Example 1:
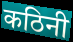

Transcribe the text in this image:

कठिनी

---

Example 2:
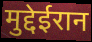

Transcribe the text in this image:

मुद्देईरान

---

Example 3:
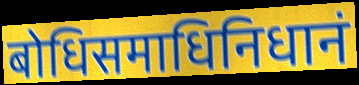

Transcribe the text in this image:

बोधिसमाधिनिधानं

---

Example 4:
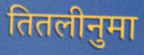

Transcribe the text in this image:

तितलीनुमा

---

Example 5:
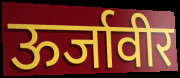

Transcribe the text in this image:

ऊर्जावीर